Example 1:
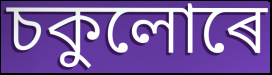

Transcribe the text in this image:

চকুলোৰে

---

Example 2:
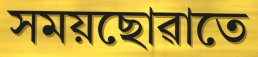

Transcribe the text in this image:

সময়ছোৱাতে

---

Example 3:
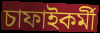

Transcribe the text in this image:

চাফাইকৰ্মী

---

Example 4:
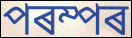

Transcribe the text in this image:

পৰম্পৰ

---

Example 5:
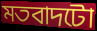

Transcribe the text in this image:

মতবাদটো